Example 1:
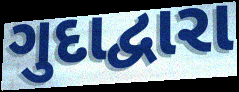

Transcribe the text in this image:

ગુદાદ્વારા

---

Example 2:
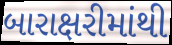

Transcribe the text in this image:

બારાક્ષરીમાંથી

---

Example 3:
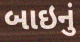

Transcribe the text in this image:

બાઇનું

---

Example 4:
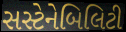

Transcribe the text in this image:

સસ્ટેનેબિલિટી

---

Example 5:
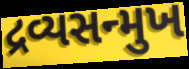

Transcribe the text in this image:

દ્રવ્યસન્મુખ